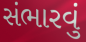
સંભારવું